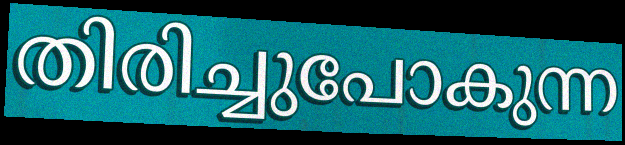
തിരിച്ചുപോകുന്ന